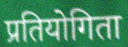
प्रतियोगिता